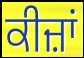
ਕੀਜ਼ਾਂ